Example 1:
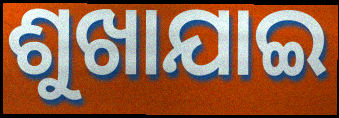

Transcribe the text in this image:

ଶୁଖାଯାଇ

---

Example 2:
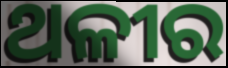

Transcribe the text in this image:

ଥଳୀର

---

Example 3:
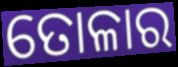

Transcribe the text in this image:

ତୋଳାର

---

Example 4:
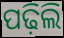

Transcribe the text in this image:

ପଢ଼ିଲି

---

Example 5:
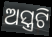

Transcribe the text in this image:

ଅସ୍ତ୍ରଟି